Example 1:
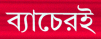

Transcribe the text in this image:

ব্যাচেরই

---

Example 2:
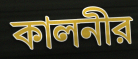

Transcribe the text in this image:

কালনীর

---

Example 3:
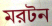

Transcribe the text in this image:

মরটন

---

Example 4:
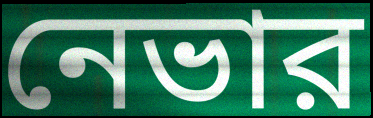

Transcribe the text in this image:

নেভার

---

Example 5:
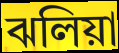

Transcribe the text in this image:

ঝলিয়া